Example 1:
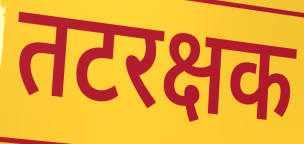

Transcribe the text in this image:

तटरक्षक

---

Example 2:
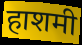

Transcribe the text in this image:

हाशमी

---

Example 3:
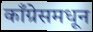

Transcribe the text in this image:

काँग्रेसमधून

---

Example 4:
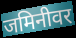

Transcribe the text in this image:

जमिनीवर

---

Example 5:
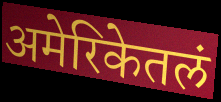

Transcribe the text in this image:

अमेरिकेतलं